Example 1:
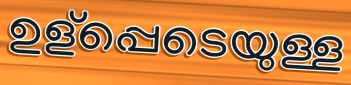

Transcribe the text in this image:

ഉള്പ്പെടെയുള്ള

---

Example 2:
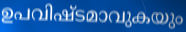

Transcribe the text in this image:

ഉപവിഷ്ടമാവുകയും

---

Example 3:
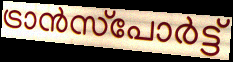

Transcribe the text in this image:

ട്രാൻസ്‌പോർട്ട്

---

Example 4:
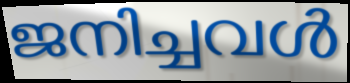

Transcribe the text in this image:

ജനിച്ചവൾ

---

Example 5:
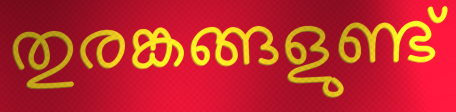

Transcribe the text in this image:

തുരങ്കങ്ങളുണ്ട്